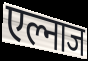
एल्नाज